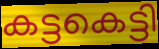
കട്ടകെട്ടി